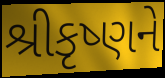
શ્રીકૃષ્ણને